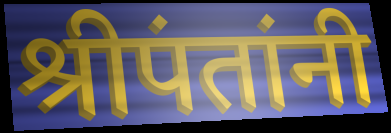
श्रीपंतांनी